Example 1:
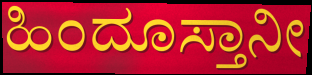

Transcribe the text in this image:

ಹಿಂದೂಸ್ತಾನೀ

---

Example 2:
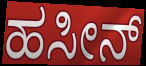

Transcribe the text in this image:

ಹಸೀನ್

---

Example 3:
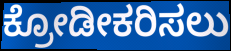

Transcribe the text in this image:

ಕ್ರೋಡೀಕರಿಸಲು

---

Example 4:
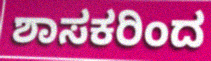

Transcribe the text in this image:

ಶಾಸಕರಿಂದ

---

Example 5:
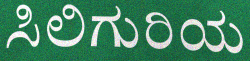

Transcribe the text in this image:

ಸಿಲಿಗುರಿಯ